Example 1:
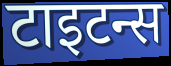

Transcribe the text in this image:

टाइटन्स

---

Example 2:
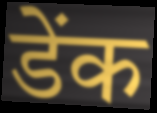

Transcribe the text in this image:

डेंक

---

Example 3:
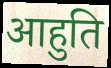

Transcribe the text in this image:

आहुति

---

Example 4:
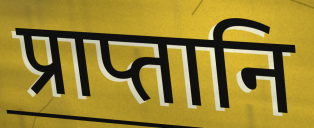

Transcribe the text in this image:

प्राप्तानि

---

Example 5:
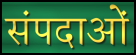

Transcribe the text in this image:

संपदाओं